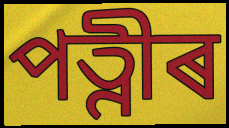
পত্নীৰ